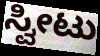
ಸ್ವೀಟು